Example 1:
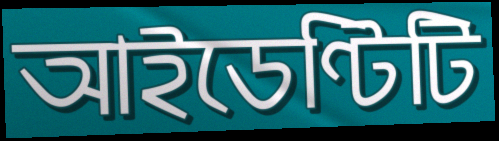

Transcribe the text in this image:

আইডেণ্টিটি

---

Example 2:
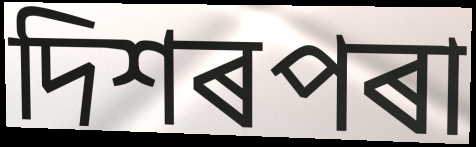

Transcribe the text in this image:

দিশৰপৰা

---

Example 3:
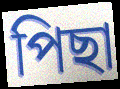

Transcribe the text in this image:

পিছা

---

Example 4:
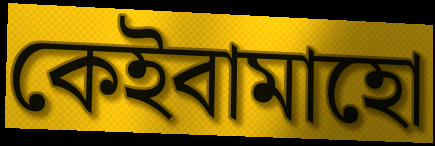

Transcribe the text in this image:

কেইবামাহো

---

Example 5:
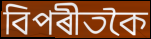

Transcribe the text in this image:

বিপৰীতকৈ